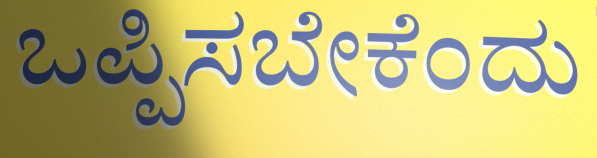
ಒಪ್ಪಿಸಬೇಕೆಂದು